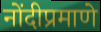
नोंदीप्रमाणे